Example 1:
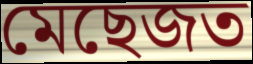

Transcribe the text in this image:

মেছেজত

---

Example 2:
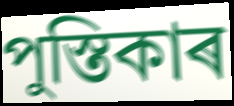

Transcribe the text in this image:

পুস্তিকাৰ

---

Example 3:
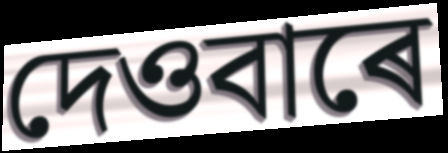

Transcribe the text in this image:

দেওবাৰে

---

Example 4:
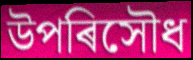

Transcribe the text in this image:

উপৰিসৌধ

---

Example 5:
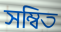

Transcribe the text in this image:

সম্বিত